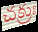
చక్రుః